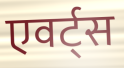
एवर्ट्स